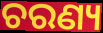
ଚରଣ୍ୟ